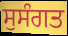
ਸੁਸੰਗਤ